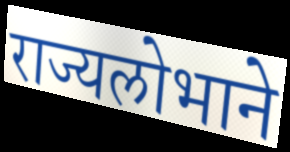
राज्यलोभाने